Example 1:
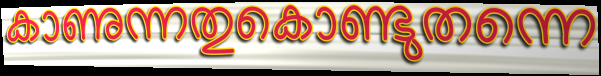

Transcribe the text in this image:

കാണുന്നതുകൊണ്ടുതന്നെ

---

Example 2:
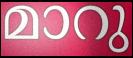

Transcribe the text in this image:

മാറു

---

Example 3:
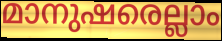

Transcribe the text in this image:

മാനുഷരെല്ലാം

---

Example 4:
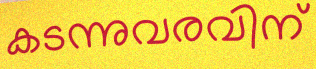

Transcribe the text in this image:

കടന്നുവരവിന്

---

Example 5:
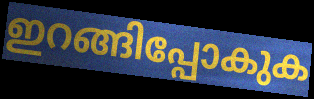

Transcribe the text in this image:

ഇറങ്ങിപ്പോകുക